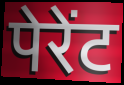
पेरेंट